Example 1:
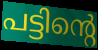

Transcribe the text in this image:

പട്ടിന്റെ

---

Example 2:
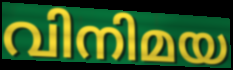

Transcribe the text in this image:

വിനിമയ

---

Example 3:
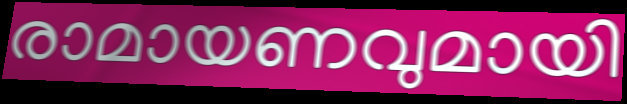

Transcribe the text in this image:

രാമായണവുമായി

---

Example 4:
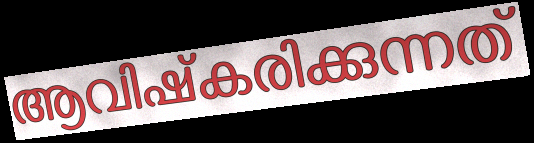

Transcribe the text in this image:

ആവിഷ്‌കരിക്കുന്നത്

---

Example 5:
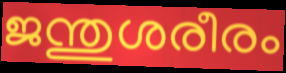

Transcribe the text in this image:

ജന്തുശരീരം